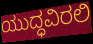
ಯುದ್ಧವಿರಲಿ